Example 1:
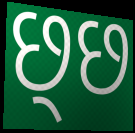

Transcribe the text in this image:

છ્છ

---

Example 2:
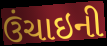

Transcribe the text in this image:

ઉંચાઇની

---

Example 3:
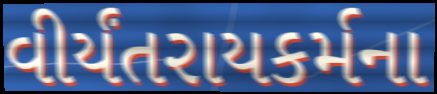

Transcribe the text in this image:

વીર્યંતરાયકર્મના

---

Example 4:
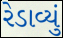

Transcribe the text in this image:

રેડાવ્યું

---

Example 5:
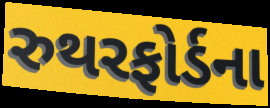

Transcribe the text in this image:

રુથરફોર્ડના